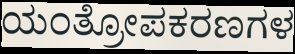
ಯಂತ್ರೋಪಕರಣಗಳ